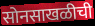
सोनसाखळीची